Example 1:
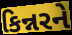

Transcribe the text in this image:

કિન્નરને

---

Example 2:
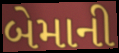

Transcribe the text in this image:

બેમાની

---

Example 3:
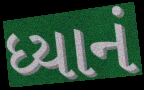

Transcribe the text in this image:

ધ્યાનં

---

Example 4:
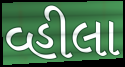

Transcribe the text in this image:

વ્હીલા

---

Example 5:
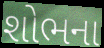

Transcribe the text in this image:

શોભના